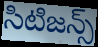
సిటిజన్స్